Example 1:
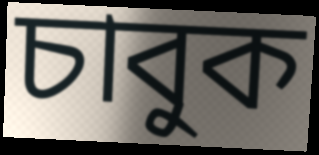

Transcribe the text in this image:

চাবুক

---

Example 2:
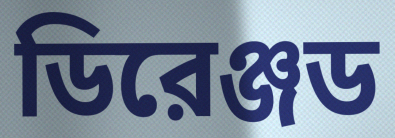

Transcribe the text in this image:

ডিরেঞ্জড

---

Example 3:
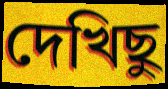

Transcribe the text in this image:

দেখিছু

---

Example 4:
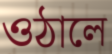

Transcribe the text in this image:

ওঠালে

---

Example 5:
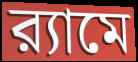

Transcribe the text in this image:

র‍্যামে